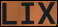
LIX